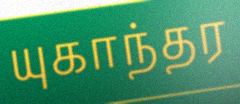
யுகாந்தர